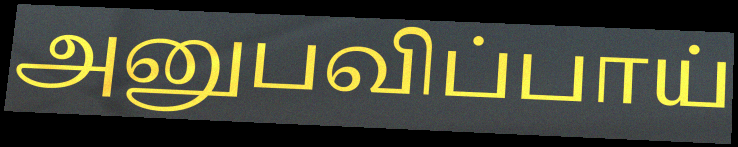
அனுபவிப்பாய்